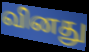
வினது